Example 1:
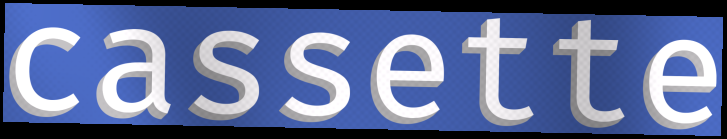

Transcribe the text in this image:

cassette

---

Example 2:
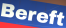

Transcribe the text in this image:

Bereft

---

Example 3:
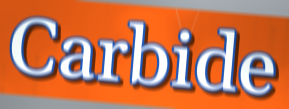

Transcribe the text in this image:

Carbide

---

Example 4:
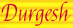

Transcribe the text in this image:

Durgesh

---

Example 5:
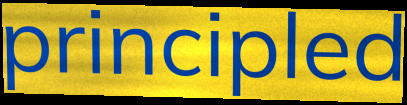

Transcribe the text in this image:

principled